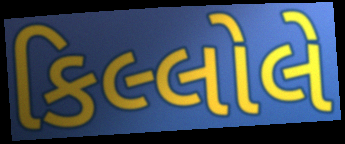
કિલ્લોલે